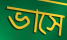
ভাসে